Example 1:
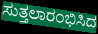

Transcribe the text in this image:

ಸುತ್ತಲಾರಂಭಿಸಿದ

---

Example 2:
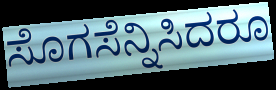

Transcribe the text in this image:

ಸೊಗಸೆನ್ನಿಸಿದರೂ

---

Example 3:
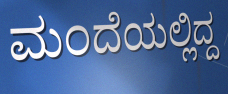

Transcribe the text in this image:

ಮಂದೆಯಲ್ಲಿದ್ದ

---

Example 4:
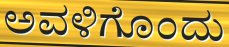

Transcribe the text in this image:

ಅವಳಿಗೊಂದು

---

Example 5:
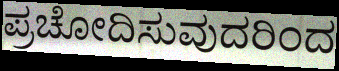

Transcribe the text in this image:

ಪ್ರಚೋದಿಸುವುದರಿಂದ